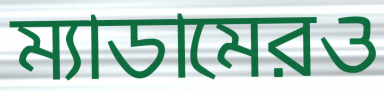
ম্যাডামেরও